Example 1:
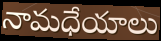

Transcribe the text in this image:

నామధేయాలు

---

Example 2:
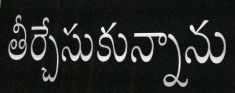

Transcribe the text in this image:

తీర్చేసుకున్నాను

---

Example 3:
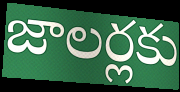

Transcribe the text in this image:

జాలర్లకు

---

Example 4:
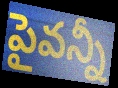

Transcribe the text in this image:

పైవన్నీ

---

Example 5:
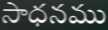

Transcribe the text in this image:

సాధనము